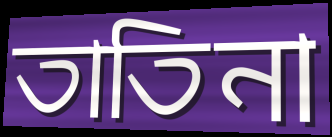
তাতিনা